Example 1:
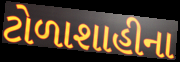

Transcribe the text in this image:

ટોળાશાહીના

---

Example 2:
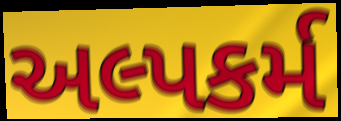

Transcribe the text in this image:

અલ્પકર્મ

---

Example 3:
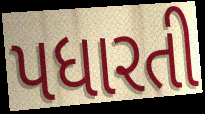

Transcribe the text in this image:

પધારતી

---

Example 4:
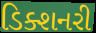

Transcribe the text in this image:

ડિક્શનરી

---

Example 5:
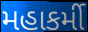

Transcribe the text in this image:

મહાકર્મી